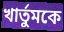
খার্তুমকে